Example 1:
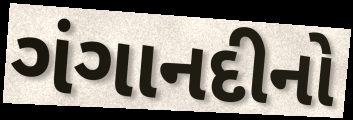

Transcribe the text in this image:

ગંગાનદીનો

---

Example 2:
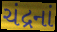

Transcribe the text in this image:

ચંદ્રનાં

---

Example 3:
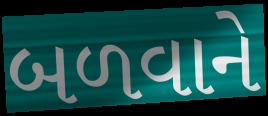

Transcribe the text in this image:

બળવાને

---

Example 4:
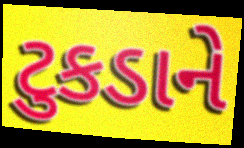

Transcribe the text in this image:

ટુકડાને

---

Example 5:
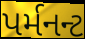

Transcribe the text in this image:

પર્મનન્ટ